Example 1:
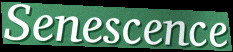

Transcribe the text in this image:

Senescence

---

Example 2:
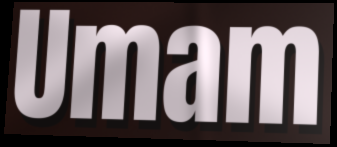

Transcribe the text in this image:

Umam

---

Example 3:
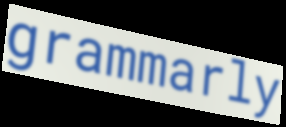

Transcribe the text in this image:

grammarly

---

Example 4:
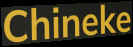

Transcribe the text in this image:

Chineke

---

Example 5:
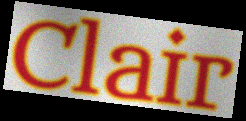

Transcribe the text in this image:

Clair